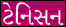
ટેનિસન